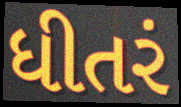
ધીતરં